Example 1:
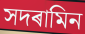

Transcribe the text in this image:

সদৰামিন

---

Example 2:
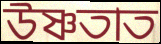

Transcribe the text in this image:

উষ্ণতাত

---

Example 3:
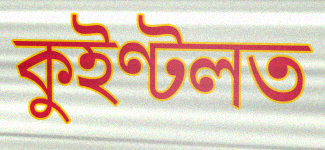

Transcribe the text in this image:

কুইণ্টলত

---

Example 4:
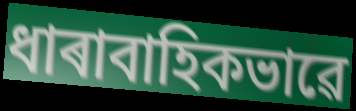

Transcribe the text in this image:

ধাৰাবাহিকভাৱে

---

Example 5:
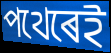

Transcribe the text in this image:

পথেৰেই